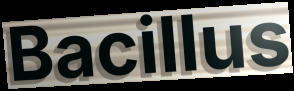
Bacillus